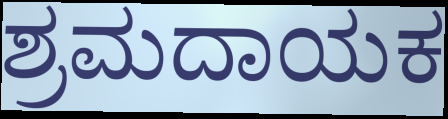
ಶ್ರಮದಾಯಕ